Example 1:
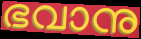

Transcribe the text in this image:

ഭവാനു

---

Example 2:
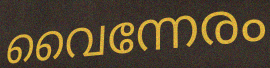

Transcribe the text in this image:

വൈന്നേരം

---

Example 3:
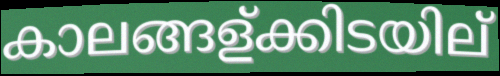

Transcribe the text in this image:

കാലങ്ങള്ക്കിടയില്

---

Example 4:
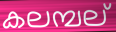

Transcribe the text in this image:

കലമ്പല്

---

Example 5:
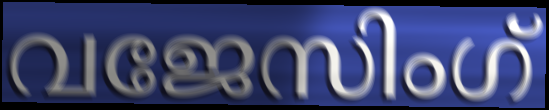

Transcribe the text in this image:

വജേസിംഗ്